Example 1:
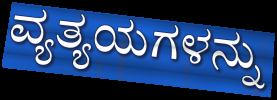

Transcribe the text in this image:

ವ್ಯತ್ಯಯಗಳನ್ನು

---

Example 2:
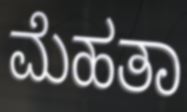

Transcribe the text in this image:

ಮೆಹತಾ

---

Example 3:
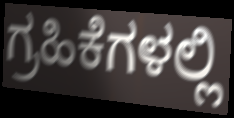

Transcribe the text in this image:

ಗ್ರಹಿಕೆಗಳಲ್ಲಿ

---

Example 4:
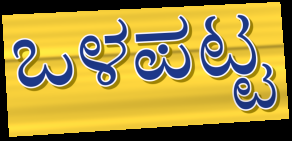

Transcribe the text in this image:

ಒಳಪಟ್ಟ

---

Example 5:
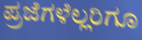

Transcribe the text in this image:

ಪ್ರಜೆಗಳೆಲ್ಲರಿಗೂ